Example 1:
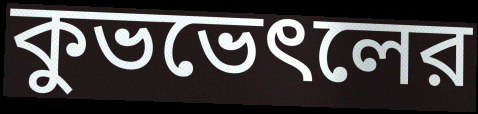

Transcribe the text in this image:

কুভভেৎলের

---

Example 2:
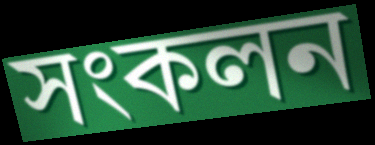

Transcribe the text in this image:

সংকলন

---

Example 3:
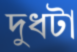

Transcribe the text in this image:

দুধটা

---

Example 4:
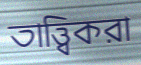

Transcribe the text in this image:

তাত্ত্বিকরা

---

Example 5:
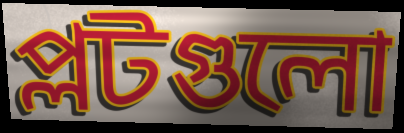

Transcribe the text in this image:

প্লটগুলো